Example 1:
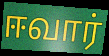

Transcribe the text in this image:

ஈவார்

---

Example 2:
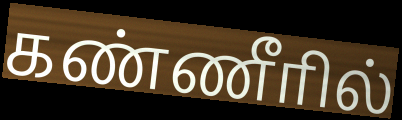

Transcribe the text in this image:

கண்ணீரில்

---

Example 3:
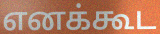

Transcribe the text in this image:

எனக்கூட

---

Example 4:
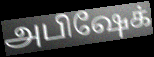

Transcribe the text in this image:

அபிஷேக்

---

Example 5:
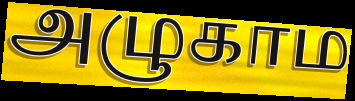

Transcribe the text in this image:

அழுகாம